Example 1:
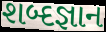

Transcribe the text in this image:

શબ્દજ્ઞાન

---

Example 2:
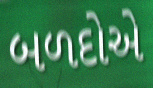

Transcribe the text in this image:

બળદોએ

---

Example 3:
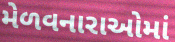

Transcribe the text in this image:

મેળવનારાઓમાં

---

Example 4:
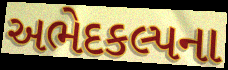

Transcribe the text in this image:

અભેદકલ્પના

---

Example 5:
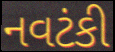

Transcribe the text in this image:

નવટંકી